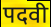
पदवी